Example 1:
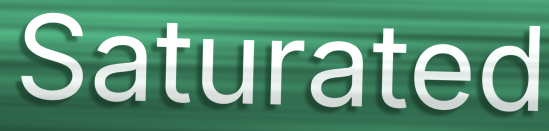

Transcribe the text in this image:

Saturated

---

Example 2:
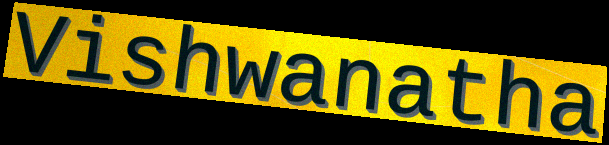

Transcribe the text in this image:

Vishwanatha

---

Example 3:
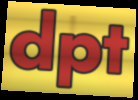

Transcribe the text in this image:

dpt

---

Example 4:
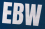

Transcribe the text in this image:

EBW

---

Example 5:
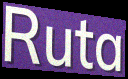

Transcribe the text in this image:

Ruta